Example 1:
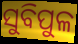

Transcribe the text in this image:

ସୁବିପୁଳ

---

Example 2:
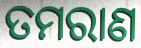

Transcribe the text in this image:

ତମରାଣ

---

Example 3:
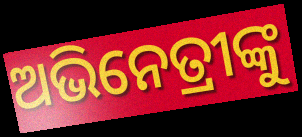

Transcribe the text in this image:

ଅଭିନେତ୍ରୀଙ୍କୁ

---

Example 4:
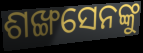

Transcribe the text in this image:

ଶଙ୍ଖସେନଙ୍କୁ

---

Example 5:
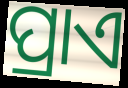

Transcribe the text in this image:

ପ୍ରାଏ